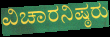
ವಿಚಾರನಿಷ್ಠರು